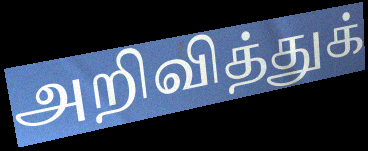
அறிவித்துக்